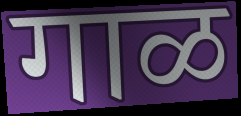
गाळ